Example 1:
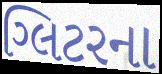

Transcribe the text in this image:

ગ્લિટરના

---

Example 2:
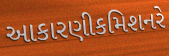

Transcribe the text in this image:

આકારણીકમિશનરે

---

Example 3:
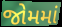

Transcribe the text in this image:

જોમમાં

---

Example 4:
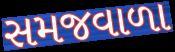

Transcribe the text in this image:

સમજવાળા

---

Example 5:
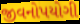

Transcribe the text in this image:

જીવનોપયોગી